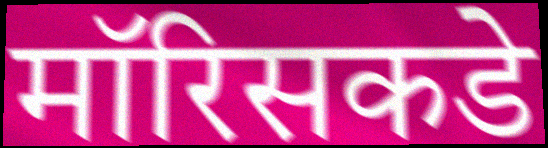
मॉरिसकडे